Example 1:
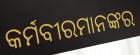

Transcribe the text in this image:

କର୍ମବୀରମାନଙ୍କର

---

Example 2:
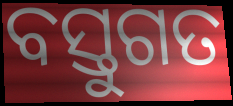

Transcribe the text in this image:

ବସ୍ତୁଗତ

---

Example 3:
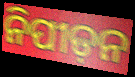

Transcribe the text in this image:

ନିପୀଡ଼ନ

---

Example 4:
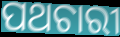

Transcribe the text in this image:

ପଥଚାରୀ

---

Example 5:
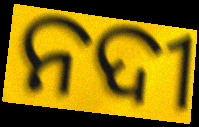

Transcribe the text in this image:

ନଦୀ